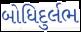
બોધિદુર્લભ